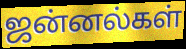
ஜன்னல்கள்